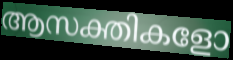
ആസക്തികളോ